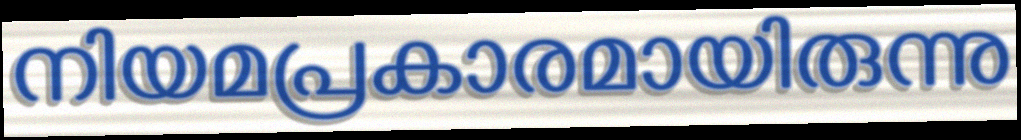
നിയമപ്രകാരമായിരുന്നു